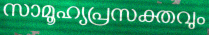
സാമൂഹ്യപ്രസക്തവും